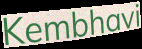
Kembhavi